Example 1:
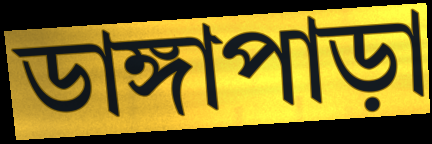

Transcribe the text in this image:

ডাঙ্গাপাড়া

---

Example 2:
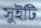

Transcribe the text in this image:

সুইটি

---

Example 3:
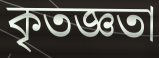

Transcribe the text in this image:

কৃতজ্ঞতা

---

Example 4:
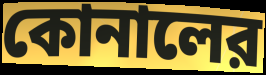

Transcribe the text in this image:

কোনালের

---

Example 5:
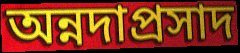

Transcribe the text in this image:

অন্নদাপ্রসাদ